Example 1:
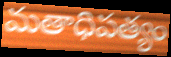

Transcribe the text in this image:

మతాధిపత్యం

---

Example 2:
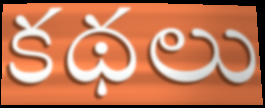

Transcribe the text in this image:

కథలు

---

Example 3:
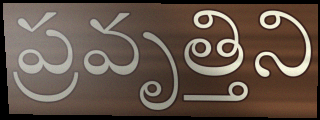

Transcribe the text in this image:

ప్రవృత్తిని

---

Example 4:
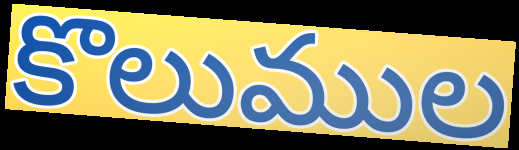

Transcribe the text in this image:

కొలుముల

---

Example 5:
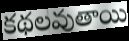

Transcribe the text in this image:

కథలవుతాయి